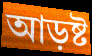
আড়ষ্ট